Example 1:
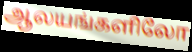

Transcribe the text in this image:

ஆலயங்களிலோ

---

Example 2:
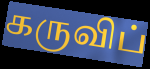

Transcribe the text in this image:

கருவிப்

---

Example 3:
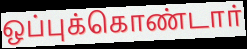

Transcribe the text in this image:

ஒப்புக்கொண்டார்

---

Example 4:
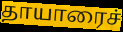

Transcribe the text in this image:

தாயாரைச்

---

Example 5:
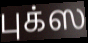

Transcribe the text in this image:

புக்ஸ